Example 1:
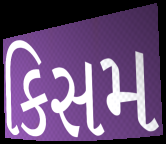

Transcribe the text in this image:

કિસમ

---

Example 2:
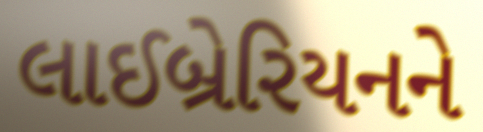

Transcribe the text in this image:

લાઈબ્રેરિયનને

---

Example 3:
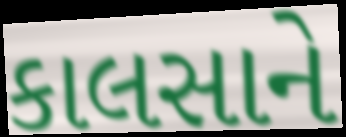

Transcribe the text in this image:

કાલસાને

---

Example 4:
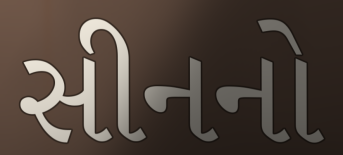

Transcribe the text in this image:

સીનનો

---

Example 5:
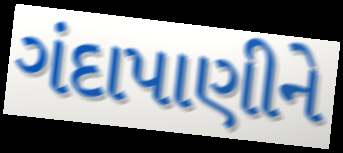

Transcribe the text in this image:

ગંદાપાણીને